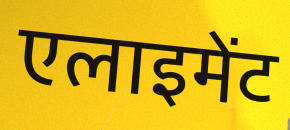
एलाइमेंट